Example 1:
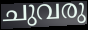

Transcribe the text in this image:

ചുവരു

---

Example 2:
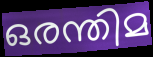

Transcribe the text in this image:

ഒരന്തിമ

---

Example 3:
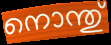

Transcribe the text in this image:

നൊന്തു്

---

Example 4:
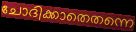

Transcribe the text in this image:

ചോദിക്കാതെതന്നെ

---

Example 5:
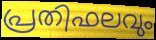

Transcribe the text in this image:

പ്രതിഫലവും